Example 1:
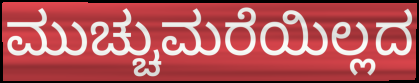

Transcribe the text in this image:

ಮುಚ್ಚುಮರೆಯಿಲ್ಲದ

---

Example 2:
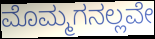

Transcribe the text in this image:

ಮೊಮ್ಮಗನಲ್ಲವೇ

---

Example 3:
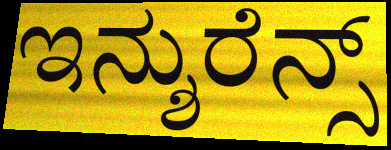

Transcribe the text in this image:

ಇನ್ಶುರೆನ್ಸ್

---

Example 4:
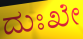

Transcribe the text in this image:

ದುಃಖೇ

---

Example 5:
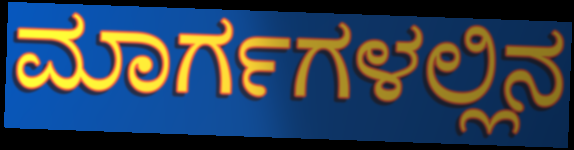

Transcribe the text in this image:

ಮಾರ್ಗಗಳಲ್ಲಿನ